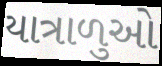
યાત્રાળુઓ